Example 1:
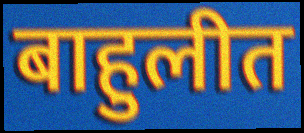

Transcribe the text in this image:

बाहुलीत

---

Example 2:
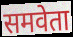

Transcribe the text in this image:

समवेता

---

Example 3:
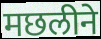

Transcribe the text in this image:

मछलीने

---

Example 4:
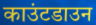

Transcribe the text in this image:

काउंटडाउन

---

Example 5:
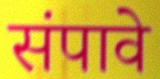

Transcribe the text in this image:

संपावे